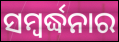
ସମ୍ବର୍ଦ୍ଧନାର